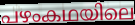
പഴംകഥയിലെ